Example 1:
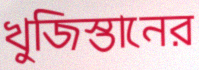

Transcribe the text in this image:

খুজিস্তানের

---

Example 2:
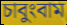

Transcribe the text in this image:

চাবুংবাম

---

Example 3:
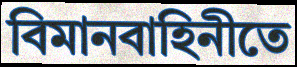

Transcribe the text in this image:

বিমানবাহিনীতে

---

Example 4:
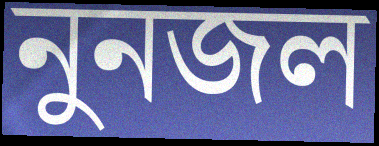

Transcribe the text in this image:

নুনজল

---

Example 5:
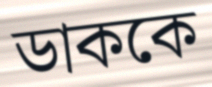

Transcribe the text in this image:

ডাককে